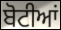
ਬੋਟੀਆਂ